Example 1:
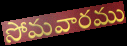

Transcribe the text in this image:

సోమవారము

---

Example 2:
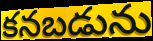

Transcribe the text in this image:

కనబడును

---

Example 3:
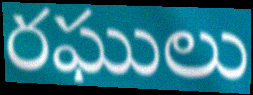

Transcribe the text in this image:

రఘులు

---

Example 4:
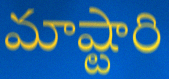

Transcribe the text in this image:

మాష్టారి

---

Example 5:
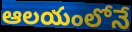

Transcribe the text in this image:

ఆలయంలోనే